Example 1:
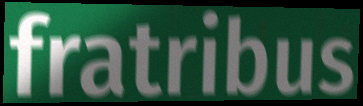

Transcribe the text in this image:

fratribus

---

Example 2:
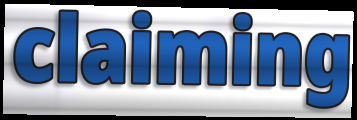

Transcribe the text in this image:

claiming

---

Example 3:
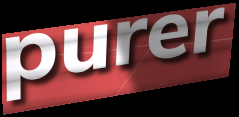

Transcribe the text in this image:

purer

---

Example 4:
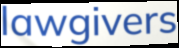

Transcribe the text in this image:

lawgivers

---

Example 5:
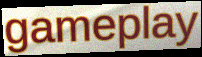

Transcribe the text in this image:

gameplay